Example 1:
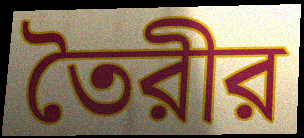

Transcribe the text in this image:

তৈরীর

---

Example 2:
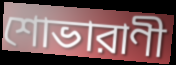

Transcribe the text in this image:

শোভারাণী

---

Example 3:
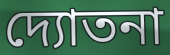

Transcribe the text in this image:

দ্যোতনা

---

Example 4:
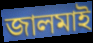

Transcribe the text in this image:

জালমাই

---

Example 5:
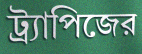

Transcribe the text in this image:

ট্র্যাপিজের